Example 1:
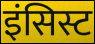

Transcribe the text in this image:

इंसिस्ट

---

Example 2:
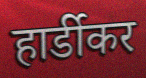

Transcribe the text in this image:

हार्डीकर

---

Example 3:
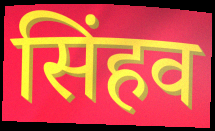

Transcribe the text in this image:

सिंहव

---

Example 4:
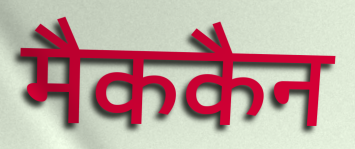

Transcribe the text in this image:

मैककैन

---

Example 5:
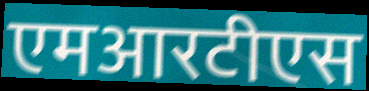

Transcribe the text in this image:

एमआरटीएस